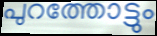
പുറത്തോട്ടും